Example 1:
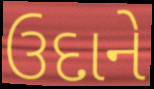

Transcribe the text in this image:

ઉદાને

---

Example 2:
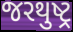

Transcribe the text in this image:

જરથુષ્ટ્ર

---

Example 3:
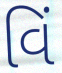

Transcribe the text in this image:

વિં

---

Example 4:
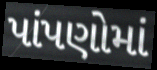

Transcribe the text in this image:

પાંપણોમાં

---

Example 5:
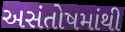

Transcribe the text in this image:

અસંતોષમાંથી